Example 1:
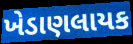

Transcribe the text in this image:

ખેડાણલાયક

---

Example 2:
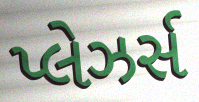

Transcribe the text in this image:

પ્લેઝર્સ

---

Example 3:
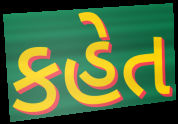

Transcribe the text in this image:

કહેત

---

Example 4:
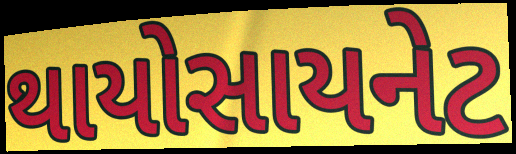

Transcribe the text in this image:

થાયોસાયનેટ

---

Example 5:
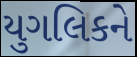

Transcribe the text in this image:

યુગલિકને